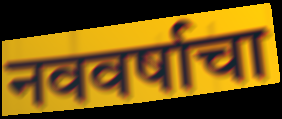
नववर्षाचा